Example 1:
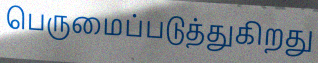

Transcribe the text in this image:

பெருமைப்படுத்துகிறது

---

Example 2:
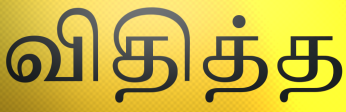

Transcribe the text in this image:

விதித்த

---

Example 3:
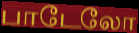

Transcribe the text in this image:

பாடேலோ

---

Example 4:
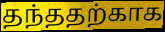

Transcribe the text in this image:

தந்ததற்காக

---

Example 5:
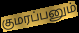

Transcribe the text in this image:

குமரப்பனும்